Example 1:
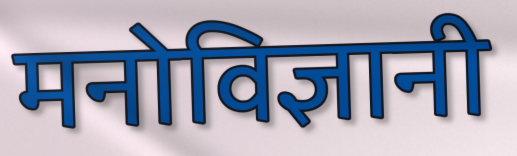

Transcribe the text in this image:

मनोविज्ञानी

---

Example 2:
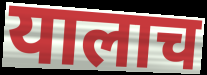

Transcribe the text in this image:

यालाच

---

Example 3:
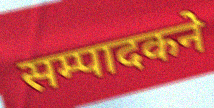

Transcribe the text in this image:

सम्पादकने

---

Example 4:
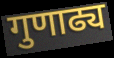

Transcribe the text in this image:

गुणाढ्य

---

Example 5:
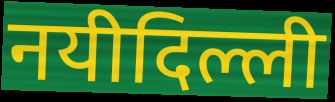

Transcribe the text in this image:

नयीदिल्ली